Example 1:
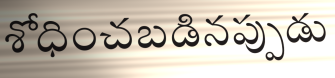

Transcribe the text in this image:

శోధించబడినప్పుడు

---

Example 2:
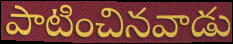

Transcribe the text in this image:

పాటించినవాడు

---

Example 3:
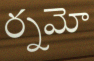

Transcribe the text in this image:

ర్నమో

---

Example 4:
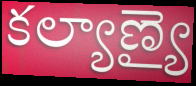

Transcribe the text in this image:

కల్యాణ్యై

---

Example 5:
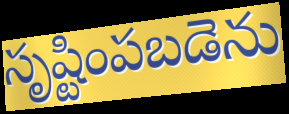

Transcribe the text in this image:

సృష్టింపబడెను